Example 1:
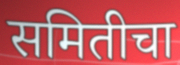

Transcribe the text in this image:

समितीचा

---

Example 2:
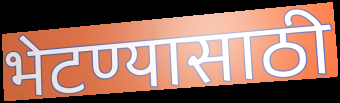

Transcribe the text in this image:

भेटण्यासाठी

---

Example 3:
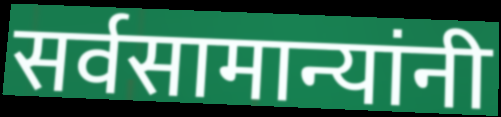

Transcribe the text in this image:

सर्वसामान्यांनी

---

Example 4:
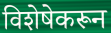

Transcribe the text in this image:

विशेषेकरून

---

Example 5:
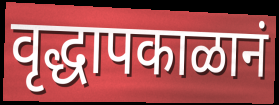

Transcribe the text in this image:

वृद्धापकाळानं